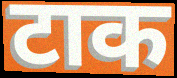
टाक